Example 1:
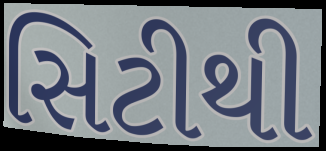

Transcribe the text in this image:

સિટીથી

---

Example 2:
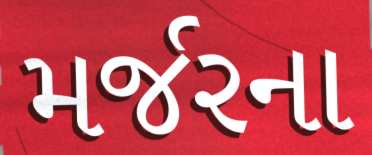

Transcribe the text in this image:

મર્જરના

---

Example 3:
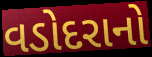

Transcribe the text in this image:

વડોદરાનો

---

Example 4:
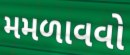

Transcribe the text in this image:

મમળાવવો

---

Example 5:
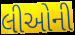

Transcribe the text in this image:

લીઓની